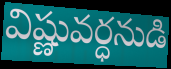
విష్ణువర్ధనుడి